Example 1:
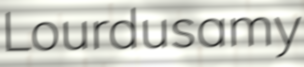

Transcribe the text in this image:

Lourdusamy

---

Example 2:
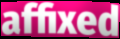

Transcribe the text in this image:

affixed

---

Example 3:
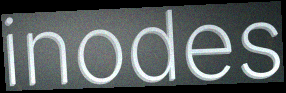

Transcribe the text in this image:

inodes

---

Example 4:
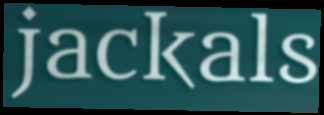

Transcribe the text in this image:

jackals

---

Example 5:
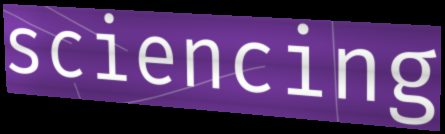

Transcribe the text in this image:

sciencing